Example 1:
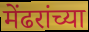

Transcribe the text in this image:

मेंढरांच्या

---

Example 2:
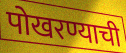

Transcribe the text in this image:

पोखरण्याची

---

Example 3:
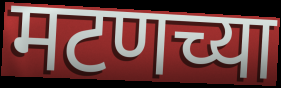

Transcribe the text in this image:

मटणच्या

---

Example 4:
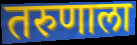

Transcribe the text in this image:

तरुणाला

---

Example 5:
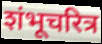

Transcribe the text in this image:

शंभूचरित्र